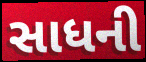
સાધની